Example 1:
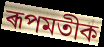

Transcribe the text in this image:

ৰূপমতীক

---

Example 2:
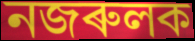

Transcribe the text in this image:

নজৰুলক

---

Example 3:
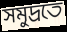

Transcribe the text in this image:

সমুদ্ৰতে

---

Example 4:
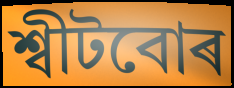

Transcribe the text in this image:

শ্বীটবোৰ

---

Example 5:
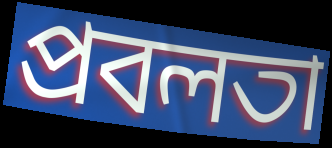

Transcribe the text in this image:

প্ৰবলতা